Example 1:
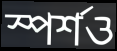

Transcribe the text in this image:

স্পর্শও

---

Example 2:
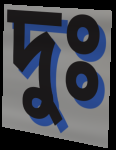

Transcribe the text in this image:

দুঃ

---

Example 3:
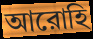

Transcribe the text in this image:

আরোহি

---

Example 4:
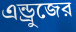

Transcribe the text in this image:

এন্ড্রুজের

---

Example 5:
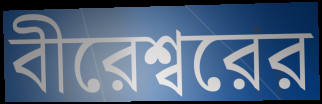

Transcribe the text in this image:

বীরেশ্বরের